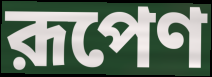
রূপেণ